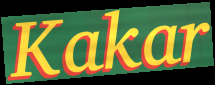
Kakar